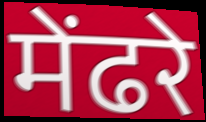
मेंढरे